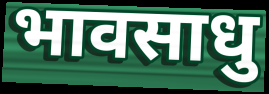
भावसाधु